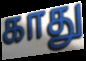
காது